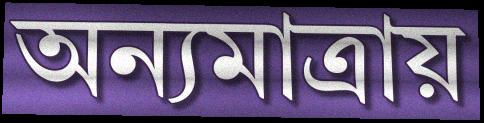
অন্যমাত্রায়